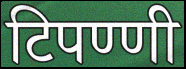
टिपण्णी